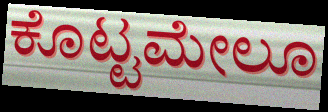
ಕೊಟ್ಟಮೇಲೂ